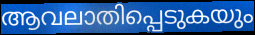
ആവലാതിപ്പെടുകയും